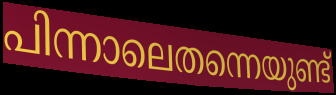
പിന്നാലെതന്നെയുണ്ട്